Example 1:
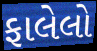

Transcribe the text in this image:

ફાલેલો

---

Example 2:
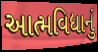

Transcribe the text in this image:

આત્મવિદ્યાનું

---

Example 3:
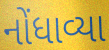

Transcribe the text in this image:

નોંધાવ્યા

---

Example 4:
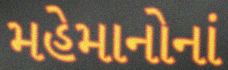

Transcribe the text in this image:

મહેમાનોનાં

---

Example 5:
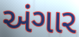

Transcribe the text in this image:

અંગાર